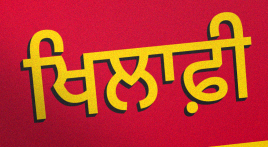
ਖਿਲਾਫ਼ੀ